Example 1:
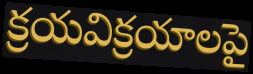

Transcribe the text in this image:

క్రయవిక్రయాలపై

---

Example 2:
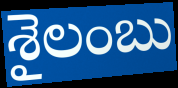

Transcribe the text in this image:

శైలంబు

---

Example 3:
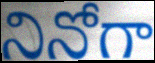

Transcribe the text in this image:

నినోగా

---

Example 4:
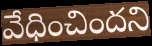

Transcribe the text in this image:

వేధించిందని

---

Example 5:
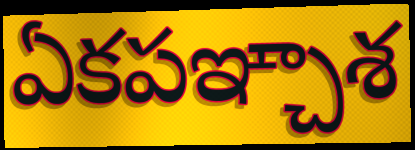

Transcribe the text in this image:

ఏకపఞ్చాశ